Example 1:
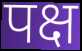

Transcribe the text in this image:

पक्ष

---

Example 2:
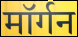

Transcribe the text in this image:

मॉर्गन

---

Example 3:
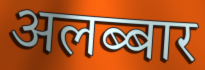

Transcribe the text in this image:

अलब्बार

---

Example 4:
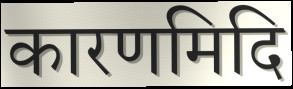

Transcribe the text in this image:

कारणमिदि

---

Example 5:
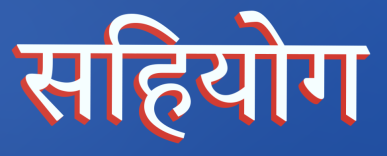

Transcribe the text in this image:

सहियोग